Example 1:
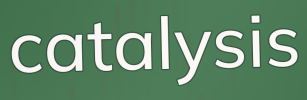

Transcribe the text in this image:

catalysis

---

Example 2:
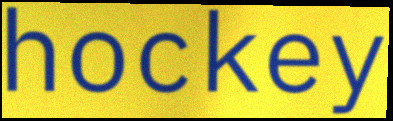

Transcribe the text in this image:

hockey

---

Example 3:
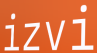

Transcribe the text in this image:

izvi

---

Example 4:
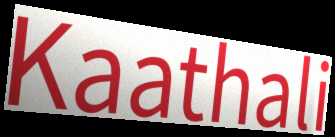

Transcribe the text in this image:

Kaathali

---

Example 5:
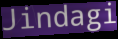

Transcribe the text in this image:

Jindagi